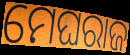
ମେଘରାଜ